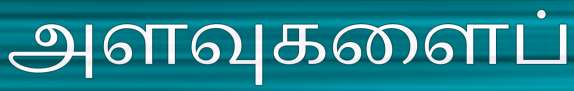
அளவுகளைப்